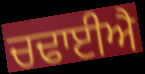
ਚਢਾਈਐ